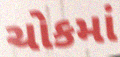
ચોકમાં